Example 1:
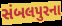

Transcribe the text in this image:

સંબલપુરના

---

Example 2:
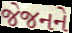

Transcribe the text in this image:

જેજનને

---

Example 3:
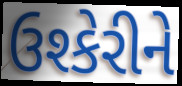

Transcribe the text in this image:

ઉશ્કેરીને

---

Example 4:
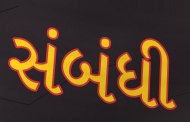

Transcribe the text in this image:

સંબંધી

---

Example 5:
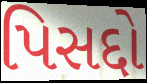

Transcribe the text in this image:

પિસદ્દો